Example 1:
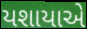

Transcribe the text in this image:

યશાયાએ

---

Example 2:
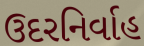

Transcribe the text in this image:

ઉદરનિર્વાહ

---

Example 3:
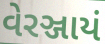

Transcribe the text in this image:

વેરઞ્જાયં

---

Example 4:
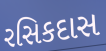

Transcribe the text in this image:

રસિકદાસ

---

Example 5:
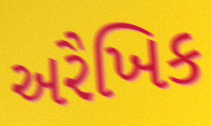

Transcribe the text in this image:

અરૈખિક